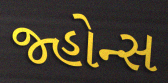
જ્હોન્સ